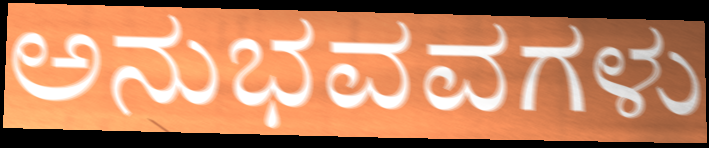
ಅನುಭವವಗಳು